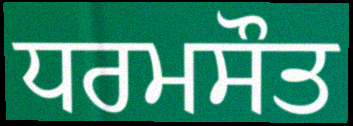
ਧਰਮਸੌਤ